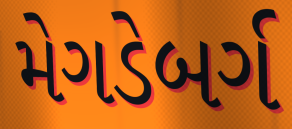
મેગડેબર્ગ